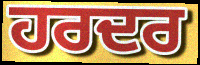
ਹਰਦਰ